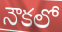
నౌకలో